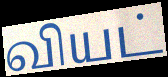
வியட்